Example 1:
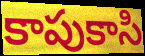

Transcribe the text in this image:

కాపుకాసి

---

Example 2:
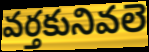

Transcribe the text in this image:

వర్తకునివలె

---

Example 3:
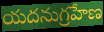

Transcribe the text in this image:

యదనుగ్రహేణ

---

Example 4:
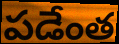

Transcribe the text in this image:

పడేంత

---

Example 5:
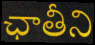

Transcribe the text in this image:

ఛాతీని